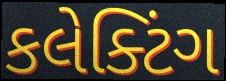
કલેક્ટિંગ